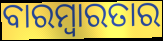
ବାରମ୍ବାରତାର